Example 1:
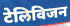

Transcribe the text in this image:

टेलिविजन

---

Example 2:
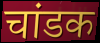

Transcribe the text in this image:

चांडक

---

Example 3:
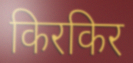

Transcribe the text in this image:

किरकिर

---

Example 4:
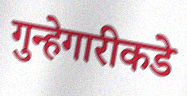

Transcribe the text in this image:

गुन्हेगारीकडे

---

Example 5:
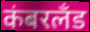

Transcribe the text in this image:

कंबरलँड